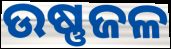
ଉଷ୍ଣଜଳ